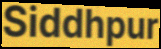
Siddhpur